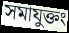
সমাযুক্তং